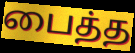
பைத்த